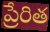
ప్రేరిత